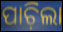
ପାଚ଼ିଲା